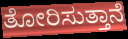
ತೋರಿಸುತ್ತಾನೆ